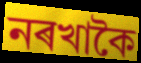
নৰখাকৈ